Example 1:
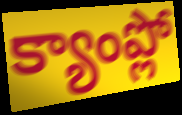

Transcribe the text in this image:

క్యాంప్లో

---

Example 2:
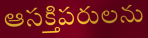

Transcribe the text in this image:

ఆసక్తిపరులను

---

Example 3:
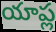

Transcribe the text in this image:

యాప్ల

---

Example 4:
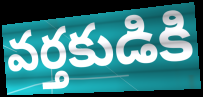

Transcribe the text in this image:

వర్తకుడికి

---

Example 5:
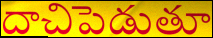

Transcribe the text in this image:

దాచిపెడుతూ